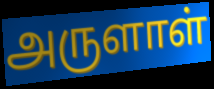
அருளாள்